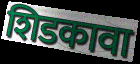
शिडकावा